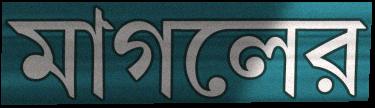
মাগলের